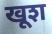
खूश